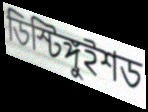
ডিস্টিঙ্গুইশড